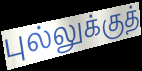
புல்லுக்குத்